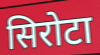
सिरोटा